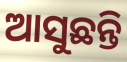
ଆସୁଛନ୍ତି